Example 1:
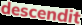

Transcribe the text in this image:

descendit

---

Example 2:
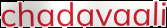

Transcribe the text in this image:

chadavaali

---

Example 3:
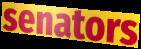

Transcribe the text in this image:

senators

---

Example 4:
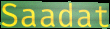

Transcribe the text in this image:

Saadat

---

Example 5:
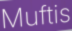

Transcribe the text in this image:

Muftis